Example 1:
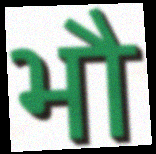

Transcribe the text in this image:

भौ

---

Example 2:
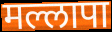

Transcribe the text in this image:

मल्लापा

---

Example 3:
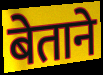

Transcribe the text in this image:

बेताने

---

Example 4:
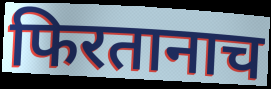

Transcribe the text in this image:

फिरतानाच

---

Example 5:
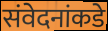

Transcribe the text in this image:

संवेदनांकडे